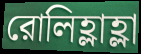
রোলিহ্লাহ্লা